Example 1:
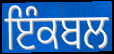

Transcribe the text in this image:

ਇੰਕਬਲ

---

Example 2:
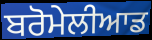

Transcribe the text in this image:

ਬਰੋਮੇਲੀਆਡ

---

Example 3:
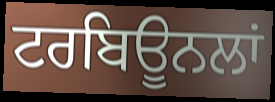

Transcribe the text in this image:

ਟਰਬਿਊਨਲਾਂ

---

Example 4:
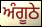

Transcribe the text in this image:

ਅੰਗੂਠੇ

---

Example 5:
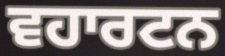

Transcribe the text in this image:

ਵਹਾਰਟਨ